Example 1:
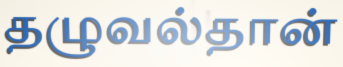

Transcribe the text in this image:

தழுவல்தான்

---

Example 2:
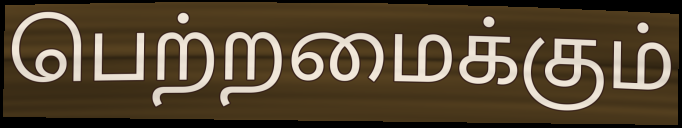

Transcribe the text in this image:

பெற்றமைக்கும்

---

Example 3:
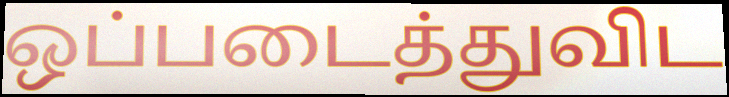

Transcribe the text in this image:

ஒப்படைத்துவிட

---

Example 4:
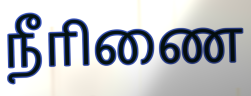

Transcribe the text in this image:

நீரிணை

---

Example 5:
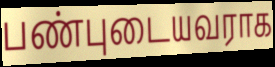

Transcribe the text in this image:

பண்புடையவராக